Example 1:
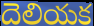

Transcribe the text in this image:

దెలియక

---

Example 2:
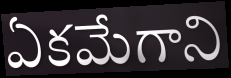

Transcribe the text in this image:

ఏకమేగాని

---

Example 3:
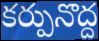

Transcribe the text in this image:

కర్పునొద్ద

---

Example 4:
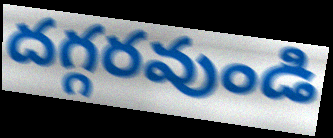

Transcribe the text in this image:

దగ్గరవుండి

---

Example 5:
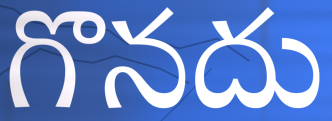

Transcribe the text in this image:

గొనదు